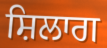
ਸ਼ਿਲਾਗ